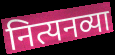
नित्यनव्या